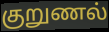
குறுணல்